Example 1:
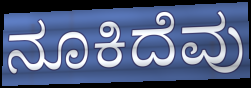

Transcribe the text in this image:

ನೂಕಿದೆವು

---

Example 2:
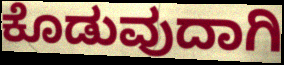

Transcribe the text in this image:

ಕೊಡುವುದಾಗಿ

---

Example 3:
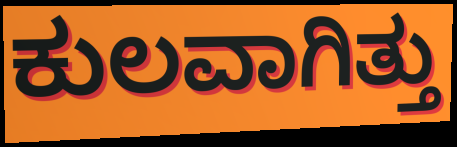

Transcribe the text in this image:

ಕುಲವಾಗಿತ್ತು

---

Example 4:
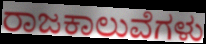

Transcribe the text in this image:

ರಾಜಕಾಲುವೆಗಳು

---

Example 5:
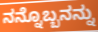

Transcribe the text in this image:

ನನ್ನೊಬ್ಬನನ್ನು